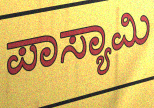
ಪಾಸ್ಯಾಮಿ